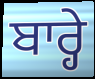
ਬਾਰ੍ਹੇ